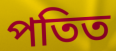
পতিত